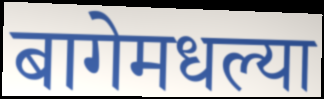
बागेमधल्या